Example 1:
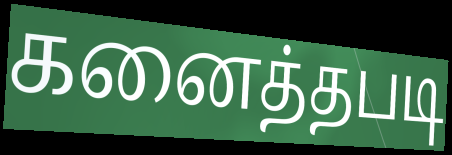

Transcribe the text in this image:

கனைத்தபடி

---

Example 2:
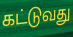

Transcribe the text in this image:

கட்டுவது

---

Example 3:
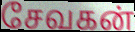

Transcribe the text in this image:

சேவகன்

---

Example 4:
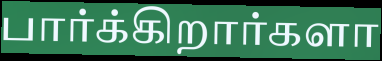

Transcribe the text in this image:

பார்க்கிறார்களா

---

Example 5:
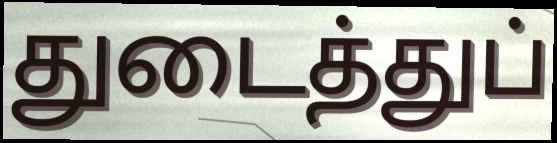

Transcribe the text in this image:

துடைத்துப்